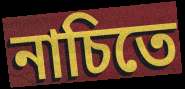
নাচিতে